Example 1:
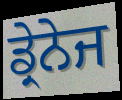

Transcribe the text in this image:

ਡ੍ਰੇਨੇਜ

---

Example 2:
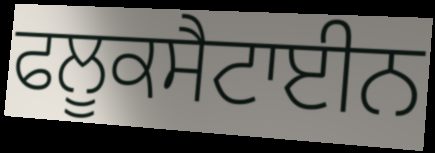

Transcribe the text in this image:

ਫਲੂਕਸੈਟਾਈਨ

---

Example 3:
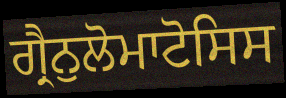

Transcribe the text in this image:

ਗ੍ਰੈਨੁਲੋਮਾਟੋਸਿਸ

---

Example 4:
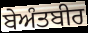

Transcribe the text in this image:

ਬੇਅੰਤਬੀਰ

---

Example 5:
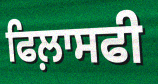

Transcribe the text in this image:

ਫਿਲ਼ਾਸਫੀ